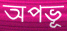
অপভূ